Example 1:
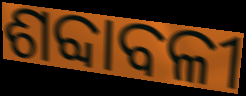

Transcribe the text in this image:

ଶବ୍ଦାବଳୀ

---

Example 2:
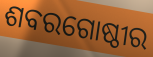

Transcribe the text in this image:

ଶବରଗୋଷ୍ଠୀର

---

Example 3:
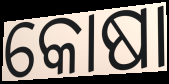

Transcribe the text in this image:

କୋଷା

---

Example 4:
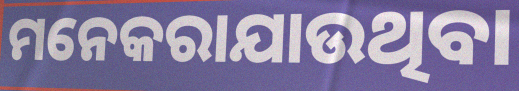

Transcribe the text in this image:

ମନେକରାଯାଉଥିବା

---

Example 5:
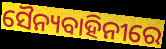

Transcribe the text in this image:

ସୈନ୍ୟବାହିନୀରେ